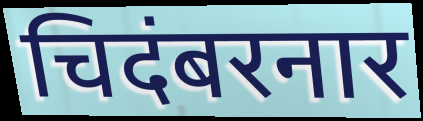
चिदंबरनार